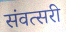
संवत्सरी